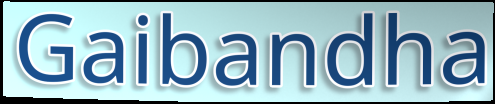
Gaibandha